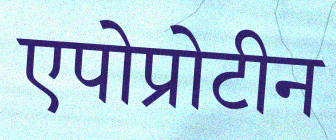
एपोप्रोटीन